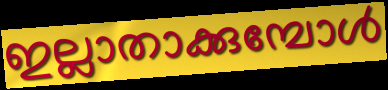
ഇല്ലാതാക്കുമ്പോൾ